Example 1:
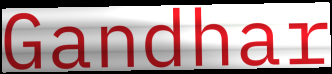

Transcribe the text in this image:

Gandhar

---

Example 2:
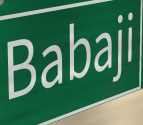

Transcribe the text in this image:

Babaji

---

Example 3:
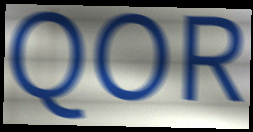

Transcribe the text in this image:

QOR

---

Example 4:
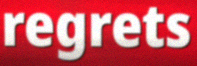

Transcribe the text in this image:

regrets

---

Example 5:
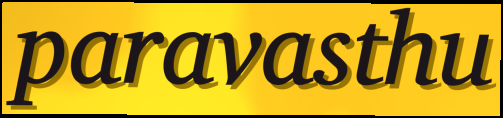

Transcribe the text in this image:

paravasthu